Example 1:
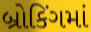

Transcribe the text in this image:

બ્રોકિંગમાં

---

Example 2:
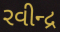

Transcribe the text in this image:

રવીન્દ્ર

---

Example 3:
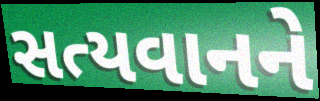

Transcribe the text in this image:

સત્યવાનને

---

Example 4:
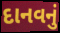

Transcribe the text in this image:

દાનવનું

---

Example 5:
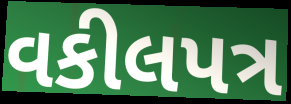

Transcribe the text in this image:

વકીલપત્ર